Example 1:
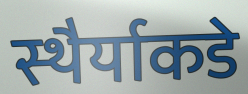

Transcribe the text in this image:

स्थैर्याकडे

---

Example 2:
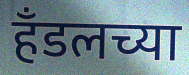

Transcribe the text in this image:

हॅंडलच्या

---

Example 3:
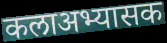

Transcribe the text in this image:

कलाअभ्यासक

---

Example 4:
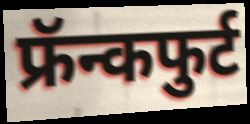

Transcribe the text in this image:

फ्रॅन्कफुर्ट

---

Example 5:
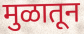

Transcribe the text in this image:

मुळातून